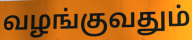
வழங்குவதும்